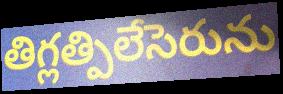
తిగ్లత్పిలేసెరును